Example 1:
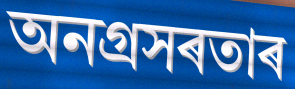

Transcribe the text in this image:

অনগ্ৰসৰতাৰ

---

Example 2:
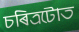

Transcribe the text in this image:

চৰিত্ৰটোত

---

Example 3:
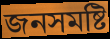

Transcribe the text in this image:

জনসমষ্টি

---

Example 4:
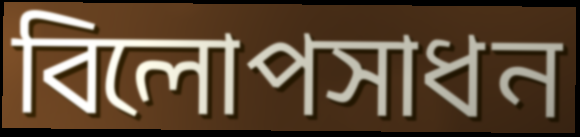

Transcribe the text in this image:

বিলোপসাধন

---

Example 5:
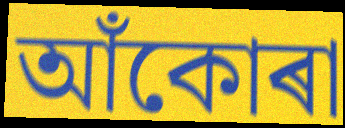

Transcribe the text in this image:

আঁকোৰা